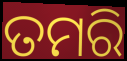
ତମରି